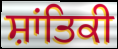
ਸ਼ਾਂਤਿਕੀ